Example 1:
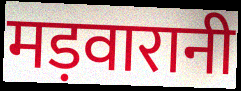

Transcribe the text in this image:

मड़वारानी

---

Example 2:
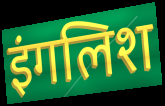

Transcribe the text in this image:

इंगलिश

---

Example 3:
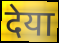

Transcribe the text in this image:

देया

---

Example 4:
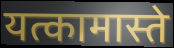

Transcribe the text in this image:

यत्कामास्ते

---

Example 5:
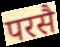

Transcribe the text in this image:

परसै